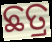
ଛତ୍ର